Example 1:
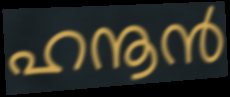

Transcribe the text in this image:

ഹനൂൻ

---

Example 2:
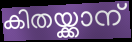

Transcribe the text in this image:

കിതയ്ക്കാന്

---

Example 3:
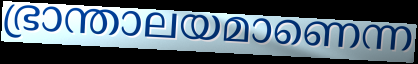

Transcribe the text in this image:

ഭ്രാന്താലയമാണെന്ന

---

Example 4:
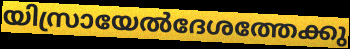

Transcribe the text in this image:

യിസ്രായേൽദേശത്തേക്കു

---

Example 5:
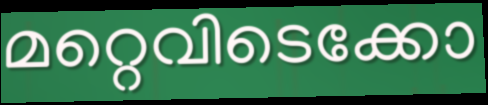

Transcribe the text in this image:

മറ്റെവിടെക്കോ